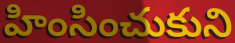
హింసించుకుని